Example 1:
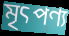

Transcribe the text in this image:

মৃৎপণ্য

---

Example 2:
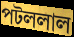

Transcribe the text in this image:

পটললাল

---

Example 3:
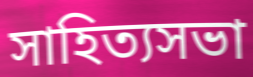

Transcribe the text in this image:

সাহিত্যসভা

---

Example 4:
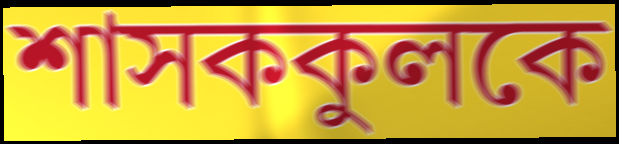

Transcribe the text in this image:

শাসককুলকে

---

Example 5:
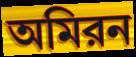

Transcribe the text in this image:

অমিরন